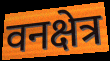
वनक्षेत्र